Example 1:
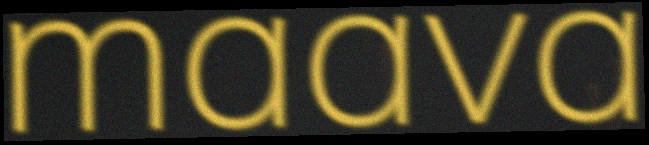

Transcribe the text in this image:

maava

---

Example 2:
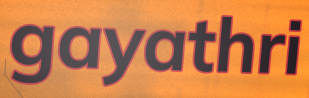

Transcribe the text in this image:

gayathri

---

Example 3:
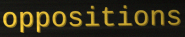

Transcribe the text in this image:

oppositions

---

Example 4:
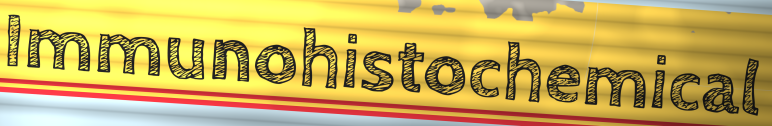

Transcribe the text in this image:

Immunohistochemical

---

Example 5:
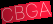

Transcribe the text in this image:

CBGA